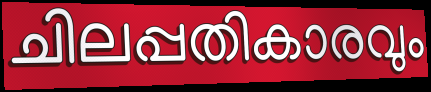
ചിലപ്പതികാരവും